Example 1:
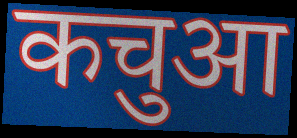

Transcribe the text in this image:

कचुआ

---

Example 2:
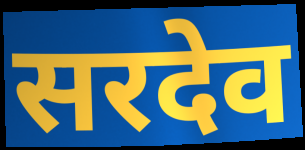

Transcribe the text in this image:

सरदेव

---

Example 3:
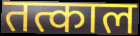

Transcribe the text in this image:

तत्‍काल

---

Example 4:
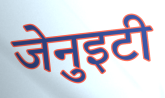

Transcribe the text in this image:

जेनुइटी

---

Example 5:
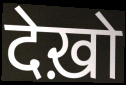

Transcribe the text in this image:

देख़ो